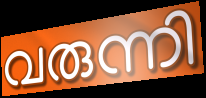
വരുന്നി